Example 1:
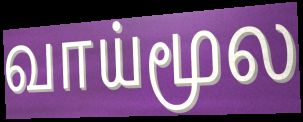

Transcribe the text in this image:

வாய்மூல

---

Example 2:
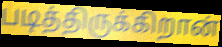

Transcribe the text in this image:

படித்திருக்கிறான்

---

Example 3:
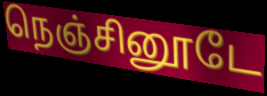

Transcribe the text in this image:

நெஞ்சினூடே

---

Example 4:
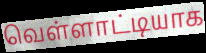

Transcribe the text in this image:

வெள்ளாட்டியாக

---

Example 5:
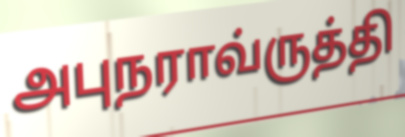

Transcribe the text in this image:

அபுநராவ்ருத்தி